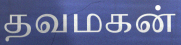
தவமகன்